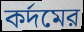
কর্দমের